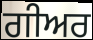
ਗੀਅਰ